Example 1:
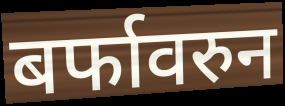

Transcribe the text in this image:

बर्फावरुन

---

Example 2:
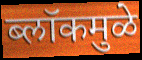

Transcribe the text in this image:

ब्लॉकमुळे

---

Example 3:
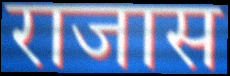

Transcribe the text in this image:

राजास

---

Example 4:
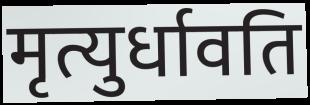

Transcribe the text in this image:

मृत्युर्धावति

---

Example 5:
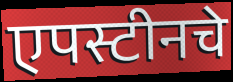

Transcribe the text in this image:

एपस्टीनचे